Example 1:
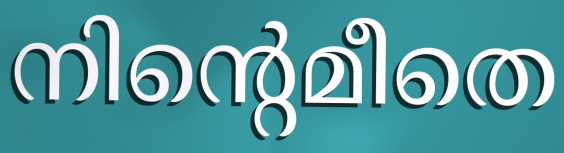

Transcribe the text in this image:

നിന്റെമീതെ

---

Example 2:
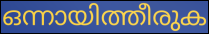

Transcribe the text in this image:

ഒന്നായിത്തീരുക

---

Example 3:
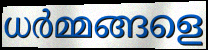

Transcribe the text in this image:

ധർമ്മങ്ങളെ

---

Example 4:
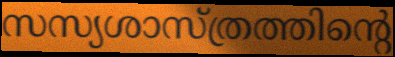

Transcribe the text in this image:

സസ്യശാസ്ത്രത്തിന്റെ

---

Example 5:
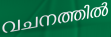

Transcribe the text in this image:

വചനത്തിൽ